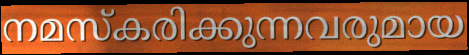
നമസ്കരിക്കുന്നവരുമായ